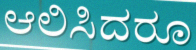
ಆಲಿಸಿದರೂ